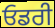
ਓਡਰੀ